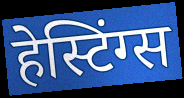
हेस्टिंग्स